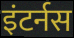
इंटर्नस